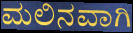
ಮಲಿನವಾಗಿ